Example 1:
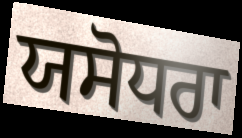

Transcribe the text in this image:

ਯਸੋਧਰਾ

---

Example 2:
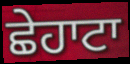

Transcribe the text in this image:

ਛੇਹਾਟਾ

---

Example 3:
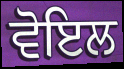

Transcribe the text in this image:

ਵੋਇਲ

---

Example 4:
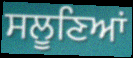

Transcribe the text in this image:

ਸਲੂਣਿਆਂ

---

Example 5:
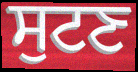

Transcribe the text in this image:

ਸੁਟਣ